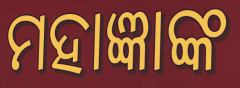
ମହାଜ୍ଞାଙ୍କ